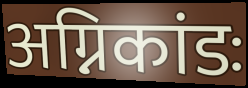
अग्निकांडः